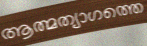
ആത്മത്യാഗത്തെ